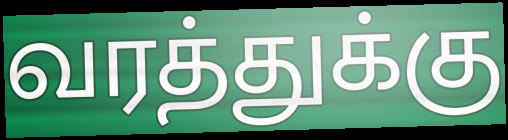
வரத்துக்கு